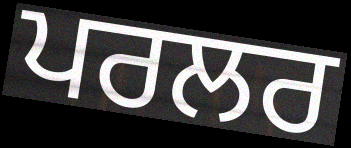
ਪਰਲਰ